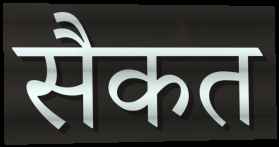
सैकत